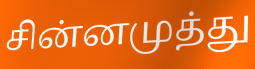
சின்னமுத்து